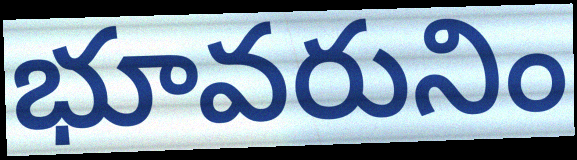
భూవరునిం